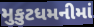
મુકુટધમનીમાં